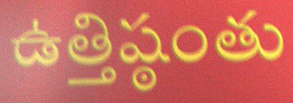
ఉత్తిష్ఠంతు